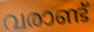
വരാണ്ട്